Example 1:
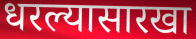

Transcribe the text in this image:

धरल्यासारखा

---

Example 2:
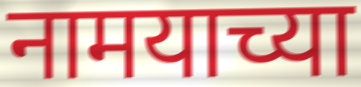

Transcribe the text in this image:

नामयाच्या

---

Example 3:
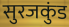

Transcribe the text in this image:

सुरजकुंड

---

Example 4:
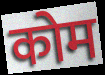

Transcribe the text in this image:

कोम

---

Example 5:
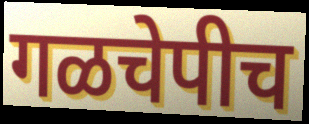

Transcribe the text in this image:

गळचेपीच